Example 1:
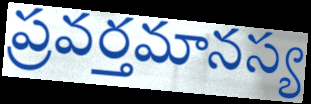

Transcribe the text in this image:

ప్రవర్తమానస్య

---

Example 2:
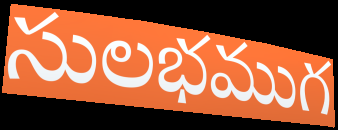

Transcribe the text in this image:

సులభముగ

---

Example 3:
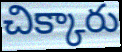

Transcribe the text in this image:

చిక్కారు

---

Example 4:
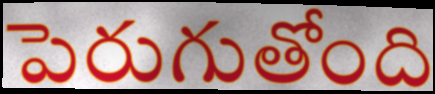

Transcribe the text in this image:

పెరుగుతోంది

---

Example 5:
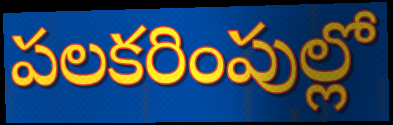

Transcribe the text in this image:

పలకరింపుల్లో